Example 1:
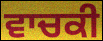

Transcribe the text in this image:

ਵਾਚਕੀ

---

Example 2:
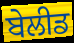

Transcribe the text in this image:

ਬੇਲੀਡ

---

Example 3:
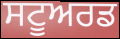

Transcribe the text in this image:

ਸਟੂਅਰਡ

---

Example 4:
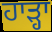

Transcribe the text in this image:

ਹਾੜ੍ਹਾ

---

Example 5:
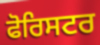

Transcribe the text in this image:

ਫੋਰਿਸਟਰ